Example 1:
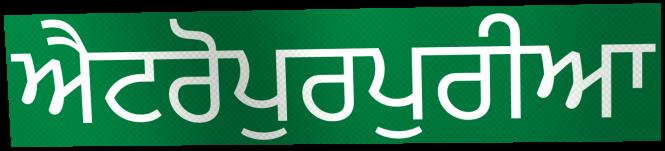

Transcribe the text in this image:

ਐਟਰੋਪੁਰਪੁਰੀਆ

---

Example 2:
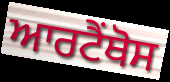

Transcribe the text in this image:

ਆਰਟੈਂਥੋਸ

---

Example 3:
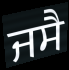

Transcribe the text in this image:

ਜਸੈ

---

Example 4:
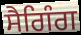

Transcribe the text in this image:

ਸੈਗਿੰਗ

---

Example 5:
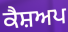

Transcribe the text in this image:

ਕੈਸ਼ਅਪ